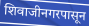
शिवाजीनगरपासून